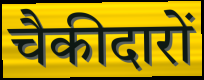
चैकीदारों